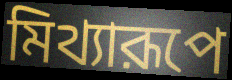
মিথ্যারূপে